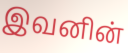
இவனின்